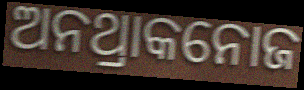
ଅନଥ୍ରାକନୋଜ